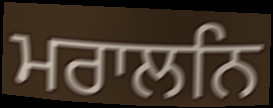
ਮਰਾਲਨਿ